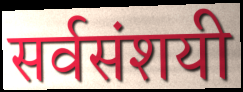
सर्वसंशयी